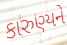
કારુણ્યને